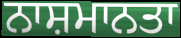
ਨਾਸ਼ਮਾਨਤਾ